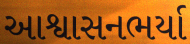
આશ્વાસનભર્યા